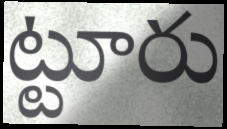
ట్టూరు